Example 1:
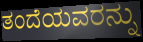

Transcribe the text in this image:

ತಂದೆಯವರನ್ನು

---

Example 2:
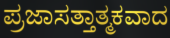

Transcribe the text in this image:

ಪ್ರಜಾಸತ್ತಾತ್ಮಕವಾದ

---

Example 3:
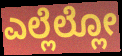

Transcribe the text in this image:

ಎಲ್ಲೆಲ್ಲೋ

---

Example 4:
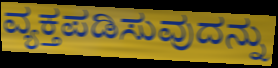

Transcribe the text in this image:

ವ್ಯಕ್ತಪಡಿಸುವುದನ್ನು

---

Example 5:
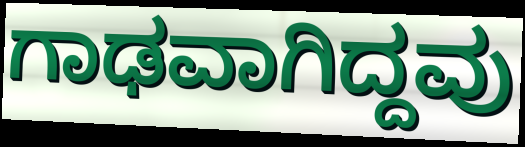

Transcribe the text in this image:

ಗಾಢವಾಗಿದ್ದವು